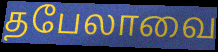
தபேலாவை